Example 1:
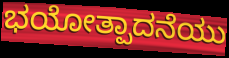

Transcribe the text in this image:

ಭಯೋತ್ಪಾದನೆಯು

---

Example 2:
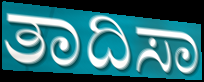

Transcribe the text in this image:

ತಾದಿಸಾ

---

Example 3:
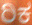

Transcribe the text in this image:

ರಿಕ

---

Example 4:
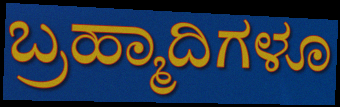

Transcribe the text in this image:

ಬ್ರಹ್ಮಾದಿಗಳೂ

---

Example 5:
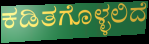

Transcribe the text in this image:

ಕಡಿತಗೊಳ್ಳಲಿದೆ